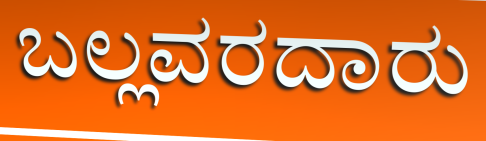
ಬಲ್ಲವರದಾರು